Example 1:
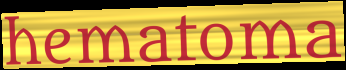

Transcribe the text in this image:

hematoma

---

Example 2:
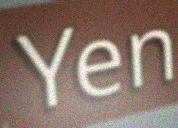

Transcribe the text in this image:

Yen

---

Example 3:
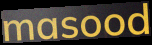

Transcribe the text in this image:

masood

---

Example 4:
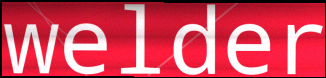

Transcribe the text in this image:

welder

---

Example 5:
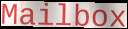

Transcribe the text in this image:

Mailbox